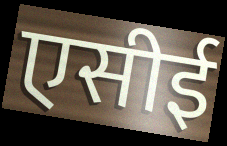
एसीई